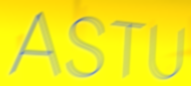
ASTU